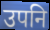
उपनि